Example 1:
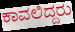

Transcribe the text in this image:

ಕಾವಲಿದ್ದರು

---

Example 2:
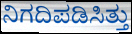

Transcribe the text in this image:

ನಿಗದಿಪಡಿಸಿತ್ತು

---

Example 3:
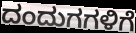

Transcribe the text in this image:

ದಂದುಗಗಳಿಗೆ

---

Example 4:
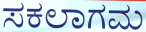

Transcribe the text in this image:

ಸಕಲಾಗಮ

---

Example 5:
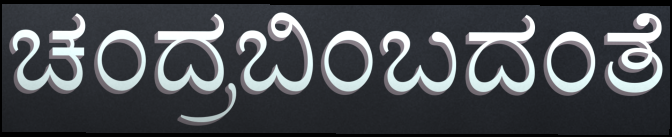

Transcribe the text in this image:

ಚಂದ್ರಬಿಂಬದಂತೆ